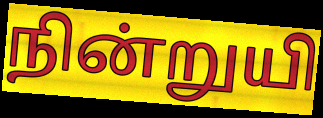
நின்றுயி